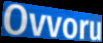
Ovvoru